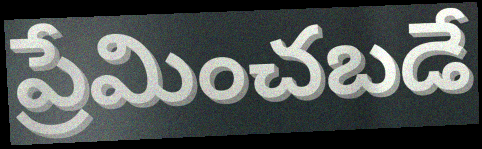
ప్రేమించబడే